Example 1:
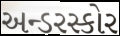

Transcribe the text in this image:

અન્ડરસ્કોર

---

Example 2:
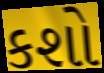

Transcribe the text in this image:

કશો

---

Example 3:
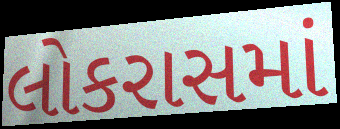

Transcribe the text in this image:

લોકરાસમાં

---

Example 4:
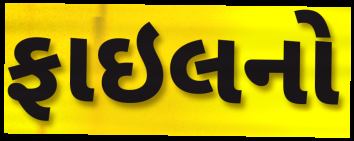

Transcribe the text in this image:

ફાઇલનો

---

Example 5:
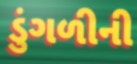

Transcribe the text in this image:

ડુંગળીની